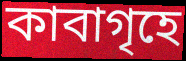
কাবাগৃহে